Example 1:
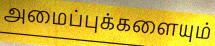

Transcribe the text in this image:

அமைப்புக்களையும்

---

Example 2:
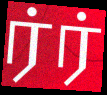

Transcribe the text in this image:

ர்ர்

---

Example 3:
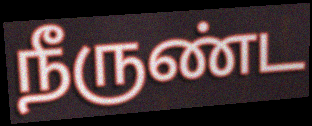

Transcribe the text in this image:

நீருண்ட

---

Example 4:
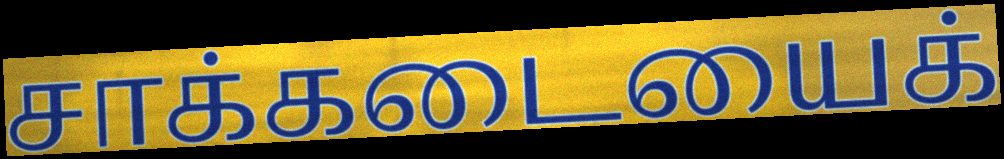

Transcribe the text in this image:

சாக்கடையைக்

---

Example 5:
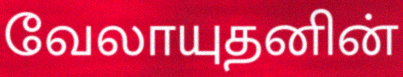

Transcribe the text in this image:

வேலாயுதனின்